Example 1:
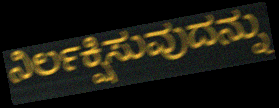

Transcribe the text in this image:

ನಿರ್ಲಕ್ಷಿಸುವುದನ್ನು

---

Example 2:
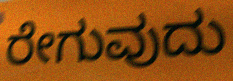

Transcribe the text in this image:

ರೇಗುವುದು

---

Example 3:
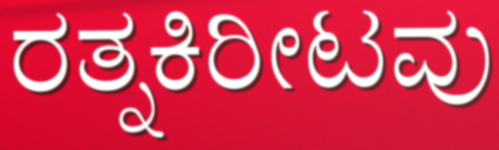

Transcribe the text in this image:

ರತ್ನಕಿರೀಟವು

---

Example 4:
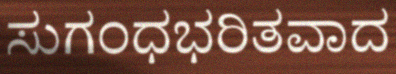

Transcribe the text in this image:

ಸುಗಂಧಭರಿತವಾದ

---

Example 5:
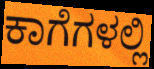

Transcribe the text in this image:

ಕಾಗೆಗಳಲ್ಲಿ